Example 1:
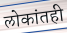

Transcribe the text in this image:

लोकांतही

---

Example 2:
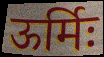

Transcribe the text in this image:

ऊर्मिः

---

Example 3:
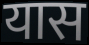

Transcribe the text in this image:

यास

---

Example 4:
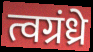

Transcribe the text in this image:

त्वग्रंध्रे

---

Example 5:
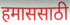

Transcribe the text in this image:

हमाससाठी